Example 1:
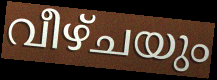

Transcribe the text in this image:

വീഴ്ചയും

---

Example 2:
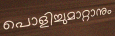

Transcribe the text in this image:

പൊളിച്ചുമാറ്റാനും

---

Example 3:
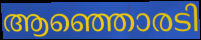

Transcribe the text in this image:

ആഞ്ഞൊരടി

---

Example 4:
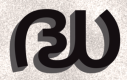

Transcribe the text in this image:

ദ്ധ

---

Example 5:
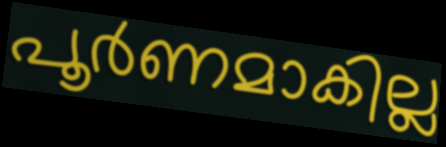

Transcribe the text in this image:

പൂർണമാകില്ല